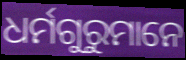
ଧର୍ମଗୁରୁମାନେ